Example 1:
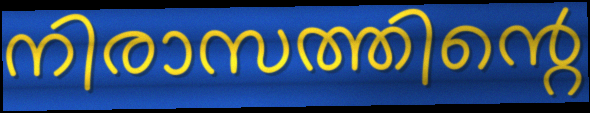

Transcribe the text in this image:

നിരാസത്തിന്റെ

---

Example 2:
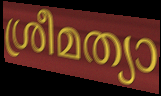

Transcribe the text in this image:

ശ്രീമത്യാ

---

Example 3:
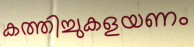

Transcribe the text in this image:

കത്തിച്ചുകളയണം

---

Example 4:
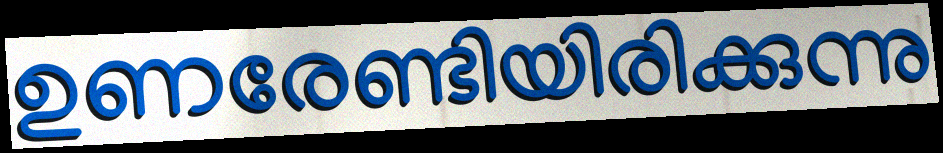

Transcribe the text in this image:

ഉണരേണ്ടിയിരിക്കുന്നു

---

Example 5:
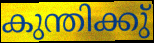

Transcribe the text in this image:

കുന്തിക്കു്